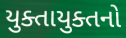
યુક્તાયુક્તનો